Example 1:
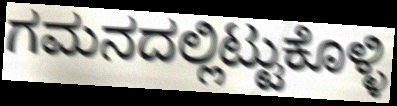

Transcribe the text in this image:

ಗಮನದಲ್ಲಿಟ್ಟುಕೊಳ್ಳಿ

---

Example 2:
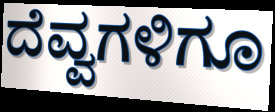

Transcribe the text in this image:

ದೆವ್ವಗಳಿಗೂ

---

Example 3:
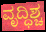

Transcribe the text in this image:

ವೃದ್ಧಿಶ್ಚ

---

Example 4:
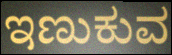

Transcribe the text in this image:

ಇಣುಕುವ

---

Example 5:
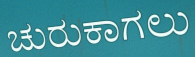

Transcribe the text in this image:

ಚುರುಕಾಗಲು